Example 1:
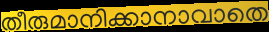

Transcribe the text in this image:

തീരുമാനിക്കാനാവാതെ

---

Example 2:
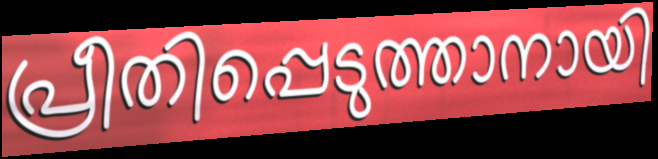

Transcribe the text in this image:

പ്രീതിപ്പെടുത്താനായി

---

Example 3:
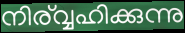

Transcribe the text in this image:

നിര്വ്വഹിക്കുന്നു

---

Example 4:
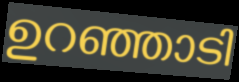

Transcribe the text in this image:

ഉറഞ്ഞാടി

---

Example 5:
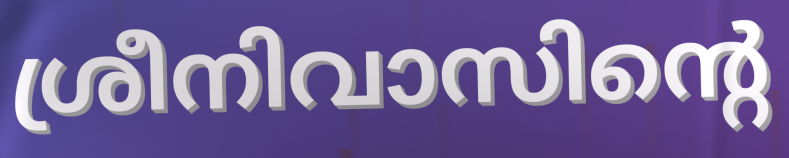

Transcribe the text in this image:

ശ്രീനിവാസിന്റെ